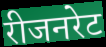
रीजनरेट